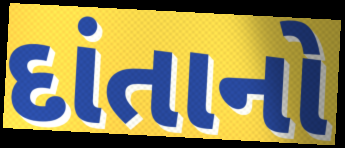
દાંતાનો